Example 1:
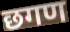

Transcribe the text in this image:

छगण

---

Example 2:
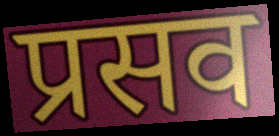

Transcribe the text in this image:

प्रसव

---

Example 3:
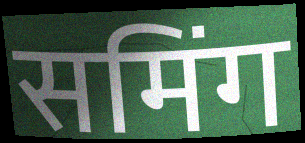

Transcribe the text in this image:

समिंग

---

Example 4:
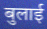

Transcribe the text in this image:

बुलाई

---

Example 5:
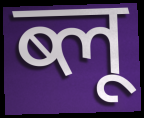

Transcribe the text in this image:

ब्लू